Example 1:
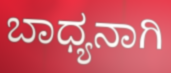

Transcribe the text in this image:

ಬಾಧ್ಯನಾಗಿ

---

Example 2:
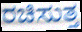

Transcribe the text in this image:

ರಚಿಸುತ್ತ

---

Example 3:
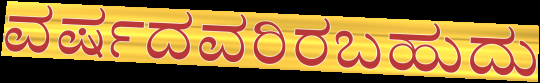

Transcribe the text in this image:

ವರ್ಷದವರಿರಬಹುದು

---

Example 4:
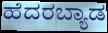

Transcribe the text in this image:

ಹೆದರಬ್ಯಾಡ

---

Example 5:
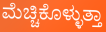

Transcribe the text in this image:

ಮೆಚ್ಚಿಕೊಳ್ಳುತ್ತಾ